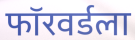
फॉरवर्डला